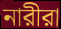
নারীরা